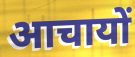
आचायों